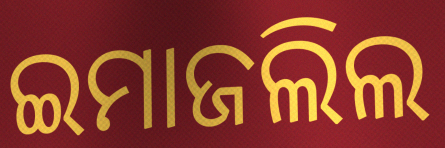
ଇମାଜଲିଲ